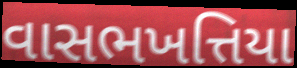
વાસભખત્તિયા